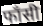
फाँसी